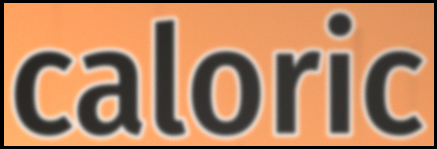
caloric